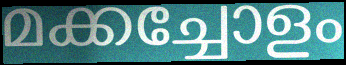
മക്കച്ചോളം